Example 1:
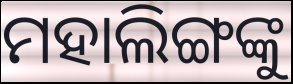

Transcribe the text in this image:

ମହାଲିଙ୍ଗଙ୍କୁ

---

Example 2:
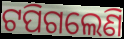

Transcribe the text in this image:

ଟପିଗଲେଣି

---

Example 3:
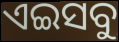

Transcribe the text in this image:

ଏଇସବୁ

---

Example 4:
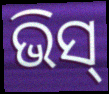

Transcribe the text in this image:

ଭିସ୍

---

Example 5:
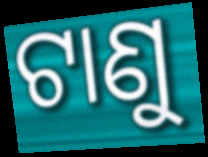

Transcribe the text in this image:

ଟାଣୁ